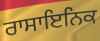
ਰਾਸਾਇਨਿਕ